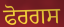
ਫੋਰਗਸ